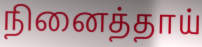
நினைத்தாய்